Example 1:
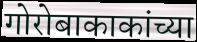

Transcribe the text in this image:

गोरोबाकाकांच्या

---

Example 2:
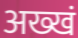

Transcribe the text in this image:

अख्खं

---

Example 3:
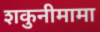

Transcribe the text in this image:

शकुनीमामा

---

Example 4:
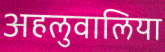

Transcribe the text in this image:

अहलुवालिया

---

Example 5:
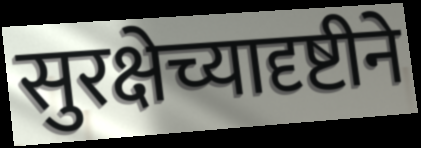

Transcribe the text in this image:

सुरक्षेच्यादृष्टीने